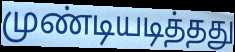
முண்டியடித்தது